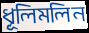
ধূলিমলিন